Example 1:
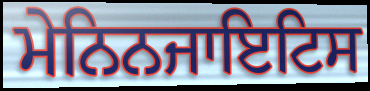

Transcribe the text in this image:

ਮੇਨਿਨਜਾਇਟਿਸ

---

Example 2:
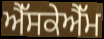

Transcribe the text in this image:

ਐੱਸਕੇਐੱਮ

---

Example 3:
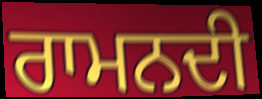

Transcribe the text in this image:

ਰਾਮਨਦੀ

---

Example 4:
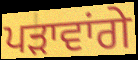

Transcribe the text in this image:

ਪੜਾਵਾਂਗੇ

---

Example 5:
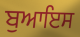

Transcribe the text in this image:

ਬੁਆਇਸ